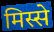
मिस्से